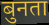
बुनता